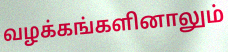
வழக்கங்களினாலும்